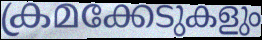
ക്രമക്കേടുകളും